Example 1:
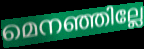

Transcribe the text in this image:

മെനഞ്ഞില്ലേ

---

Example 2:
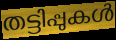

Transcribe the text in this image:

തട്ടിപ്പുകൾ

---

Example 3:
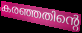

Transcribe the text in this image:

കരഞ്ഞതിന്റെ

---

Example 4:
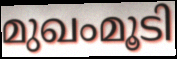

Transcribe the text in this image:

മുഖംമൂടി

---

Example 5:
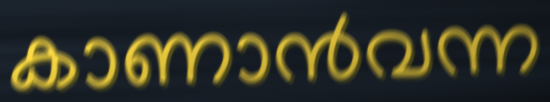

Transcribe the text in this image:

കാണാൻവന്ന